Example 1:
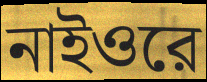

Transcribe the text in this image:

নাইওরে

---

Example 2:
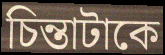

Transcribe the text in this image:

চিন্তাটাকে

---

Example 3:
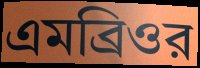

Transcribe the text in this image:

এমব্রিওর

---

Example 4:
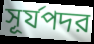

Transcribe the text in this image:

সূর্যপদর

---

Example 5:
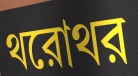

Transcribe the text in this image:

থরোথর